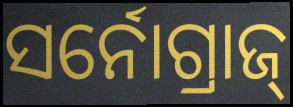
ସର୍ନୋଗ୍ରାଜ୍